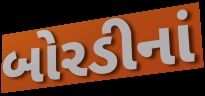
બોરડીનાં